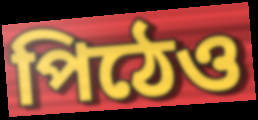
পিঠেও